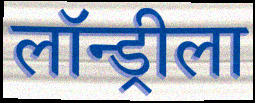
लॉन्ड्रीला